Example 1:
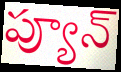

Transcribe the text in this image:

ప్యూన్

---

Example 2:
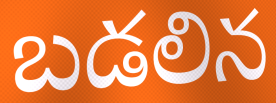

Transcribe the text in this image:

బడలిన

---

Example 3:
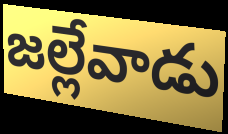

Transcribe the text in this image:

జల్లేవాడు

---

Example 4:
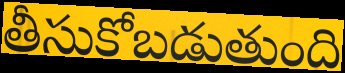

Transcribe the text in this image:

తీసుకోబడుతుంది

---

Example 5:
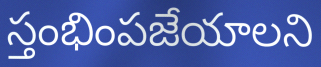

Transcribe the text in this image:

స్తంభింపజేయాలని